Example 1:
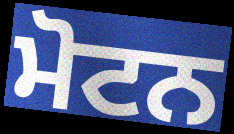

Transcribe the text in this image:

ਮੋਟਨ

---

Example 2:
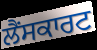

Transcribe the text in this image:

ਲੈਂਸਕਾਰਟ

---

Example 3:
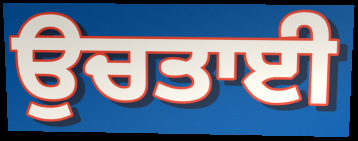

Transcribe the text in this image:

ਉਚਤਾਈ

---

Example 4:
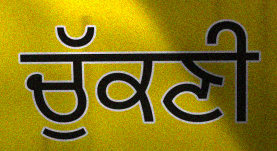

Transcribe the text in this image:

ਚੁੱਕਣੀ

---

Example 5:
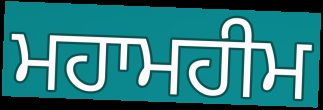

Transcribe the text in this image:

ਮਹਾਮਹੀਮ